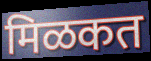
मिळकत